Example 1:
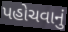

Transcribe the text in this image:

પહોચવાનું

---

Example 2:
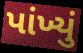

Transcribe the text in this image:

પાંખ્યું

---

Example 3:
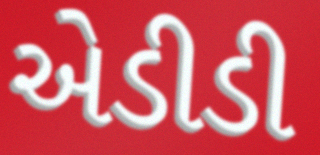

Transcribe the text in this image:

એડીડી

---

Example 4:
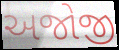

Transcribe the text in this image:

અજોજી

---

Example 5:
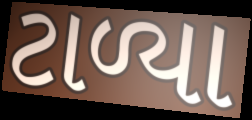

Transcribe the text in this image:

ટાળ્યા